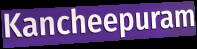
Kancheepuram